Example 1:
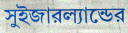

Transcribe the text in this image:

সুইজারল্যান্ডের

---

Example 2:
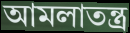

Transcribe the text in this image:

আমলাতন্ত্র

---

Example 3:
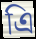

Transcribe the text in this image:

এি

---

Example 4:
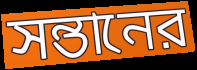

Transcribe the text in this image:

সন্তানের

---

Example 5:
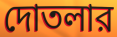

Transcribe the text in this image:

দোতলার